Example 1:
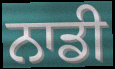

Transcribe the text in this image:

ਨਾਡੀ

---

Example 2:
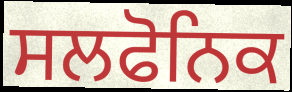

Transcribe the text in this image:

ਸਲਫੋਨਿਕ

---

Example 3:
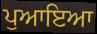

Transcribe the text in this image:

ਪੁਆਇਆ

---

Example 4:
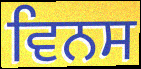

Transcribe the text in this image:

ਵਿਨਸ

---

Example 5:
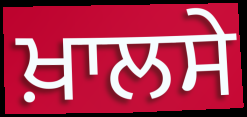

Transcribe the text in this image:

ਖ਼ਾਲਸੇ